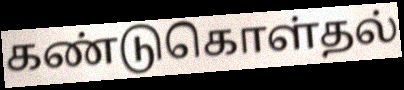
கண்டுகொள்தல்